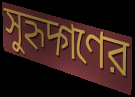
সুহৃদ্গণের